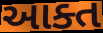
આક્ત